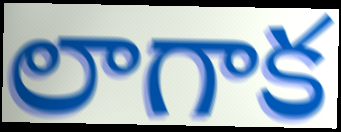
లాగాక